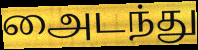
அைடந்து